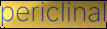
periclinal